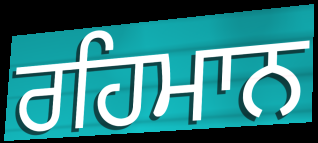
ਰਹਿਮਾਨ